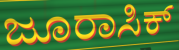
ಜೂರಾಸಿಕ್